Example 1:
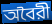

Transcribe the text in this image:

অবৈরী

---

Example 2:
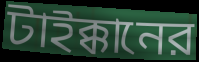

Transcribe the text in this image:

টাইক্কানের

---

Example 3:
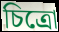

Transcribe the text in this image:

চিত্রো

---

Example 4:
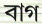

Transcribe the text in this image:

বাগ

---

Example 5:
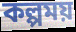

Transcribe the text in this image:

কল্পময়